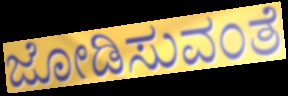
ಜೋಡಿಸುವಂತೆ